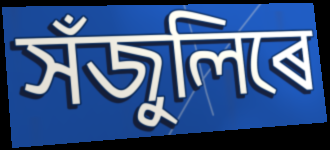
সঁজুলিৰে